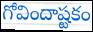
గోవిందాష్టకం